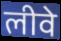
लीवे